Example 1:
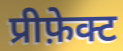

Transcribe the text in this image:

प्रीफ़ेक्ट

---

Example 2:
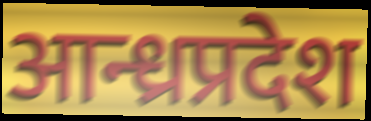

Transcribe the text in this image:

आन्ध्रप्रदेश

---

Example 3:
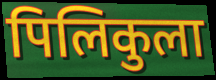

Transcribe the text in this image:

पिलिकुला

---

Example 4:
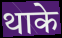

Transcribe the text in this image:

थाके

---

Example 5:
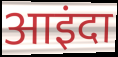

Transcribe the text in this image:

आइंदा